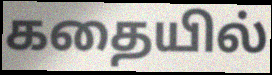
கதையில்